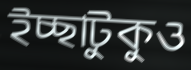
ইচ্ছাটুকুও